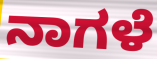
ನಾಗಳೆ